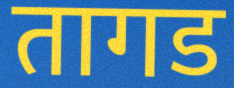
तागड